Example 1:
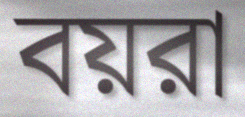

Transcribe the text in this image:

বয়রা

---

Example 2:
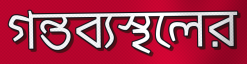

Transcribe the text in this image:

গন্তব্যস্থলের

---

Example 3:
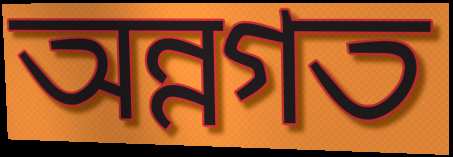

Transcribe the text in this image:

অন্নগত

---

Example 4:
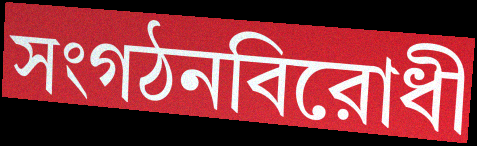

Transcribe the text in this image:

সংগঠনবিরোধী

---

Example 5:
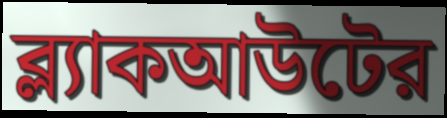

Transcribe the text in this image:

ব্ল্যাকআউটের